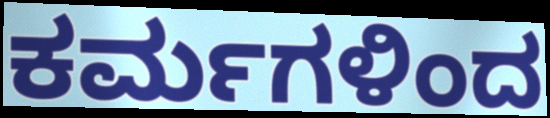
ಕರ್ಮಗಳಿಂದ